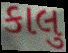
કાલુ